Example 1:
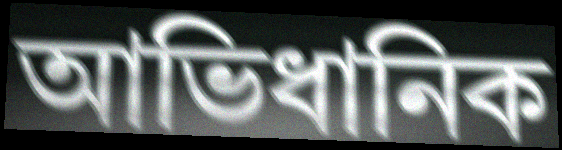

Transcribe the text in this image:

আভিধানিক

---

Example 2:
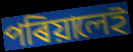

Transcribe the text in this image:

পৰিয়ালেই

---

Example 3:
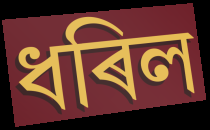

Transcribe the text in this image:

ধৰিল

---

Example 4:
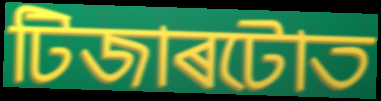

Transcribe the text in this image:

টিজাৰটোত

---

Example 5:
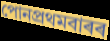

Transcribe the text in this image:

পোনপ্ৰথমবাৰৰ